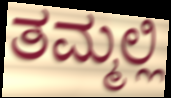
ತಮ್ಮಲ್ಲಿ